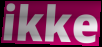
ikke